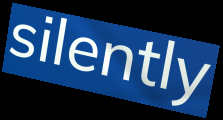
silently